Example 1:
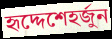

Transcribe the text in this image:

হৃদ্দেশেহর্জুন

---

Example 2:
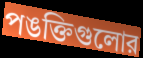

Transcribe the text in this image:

পঙক্তিগুলোর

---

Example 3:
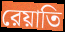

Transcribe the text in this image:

রেয়াতি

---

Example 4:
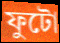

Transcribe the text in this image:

ফুটো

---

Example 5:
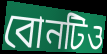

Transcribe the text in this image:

বোনটিও